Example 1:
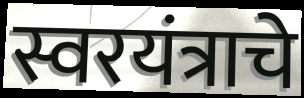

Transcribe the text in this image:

स्वरयंत्राचे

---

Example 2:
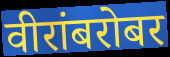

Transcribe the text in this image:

वीरांबरोबर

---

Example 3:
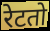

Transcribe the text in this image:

रेटतो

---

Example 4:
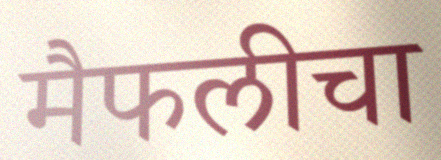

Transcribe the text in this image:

मैफलीचा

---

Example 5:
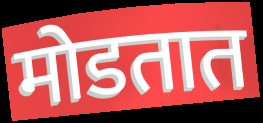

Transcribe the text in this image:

मोडतात